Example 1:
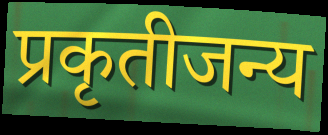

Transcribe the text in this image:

प्रकृतीजन्य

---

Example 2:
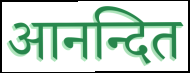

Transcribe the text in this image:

आनन्दित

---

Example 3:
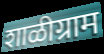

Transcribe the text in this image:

शाळीग्राम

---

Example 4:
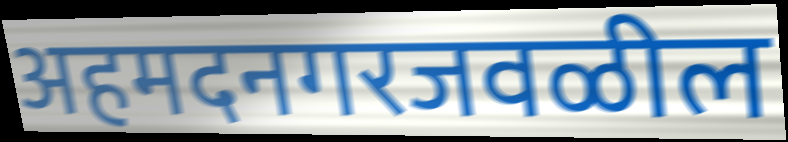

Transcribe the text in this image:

अहमदनगरजवळील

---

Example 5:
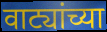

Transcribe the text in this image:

वाट्यांच्या